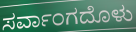
ಸರ್ವಾಂಗದೊಳು